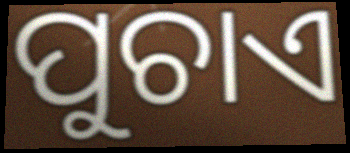
ପୁଚାଏ